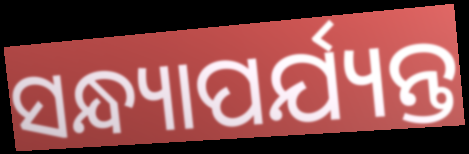
ସନ୍ଧ୍ୟାପର୍ଯ୍ୟନ୍ତ